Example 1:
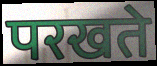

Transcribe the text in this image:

परखते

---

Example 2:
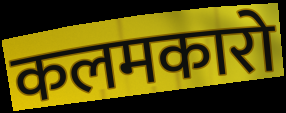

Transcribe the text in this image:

कलमकारो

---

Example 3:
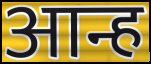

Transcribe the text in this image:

आन्ह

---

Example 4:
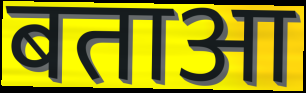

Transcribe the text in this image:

बताआ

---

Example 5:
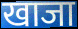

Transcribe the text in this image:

खाजा